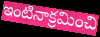
ఇంటినాక్రమించి